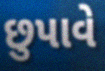
છુપાવે